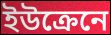
ইউক্রেনে